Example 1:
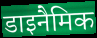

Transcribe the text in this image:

डाइनैमिक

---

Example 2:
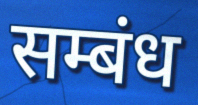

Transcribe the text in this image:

सम्बंध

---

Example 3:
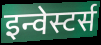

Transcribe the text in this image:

इन्वेस्टर्स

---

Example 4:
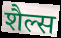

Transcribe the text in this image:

शैल्स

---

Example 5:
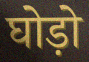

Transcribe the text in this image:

घोड़ो